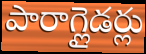
పారాగ్లైడర్లు